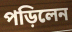
পড়িলেন